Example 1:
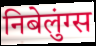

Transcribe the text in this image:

निबेलुंग्स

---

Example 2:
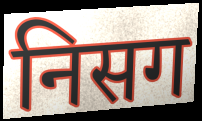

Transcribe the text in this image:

निसग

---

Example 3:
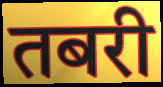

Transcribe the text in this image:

तबरी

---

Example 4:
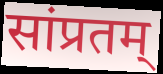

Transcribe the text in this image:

सांप्रतम्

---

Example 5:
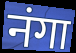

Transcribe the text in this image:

नंगा